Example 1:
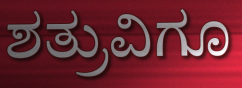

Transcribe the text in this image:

ಶತ್ರುವಿಗೂ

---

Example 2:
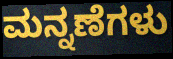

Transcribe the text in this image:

ಮನ್ನಣೆಗಳು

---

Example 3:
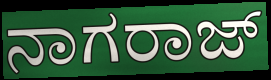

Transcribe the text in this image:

ನಾಗರಾಜ್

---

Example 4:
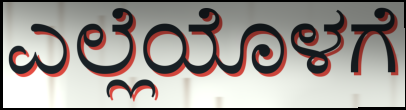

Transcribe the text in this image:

ಎಲ್ಲೆಯೊಳಗೆ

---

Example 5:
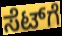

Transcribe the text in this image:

ಸೆಟ್‌ಗೆ